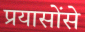
प्रयासोंसे